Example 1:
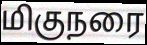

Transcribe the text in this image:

மிகுநரை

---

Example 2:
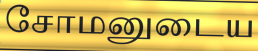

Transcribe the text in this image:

சோமனுடைய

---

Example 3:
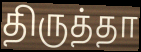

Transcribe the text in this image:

திருத்தா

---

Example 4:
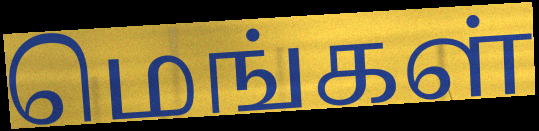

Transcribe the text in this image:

மெங்கள்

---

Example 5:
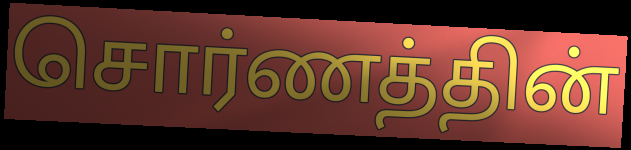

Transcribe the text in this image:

சொர்ணத்தின்